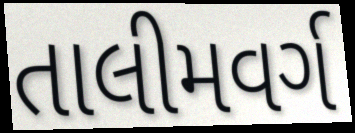
તાલીમવર્ગ